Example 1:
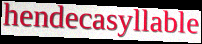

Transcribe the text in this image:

hendecasyllable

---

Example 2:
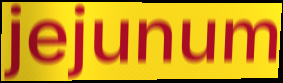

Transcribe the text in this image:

jejunum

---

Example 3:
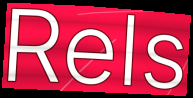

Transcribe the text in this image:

Rels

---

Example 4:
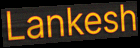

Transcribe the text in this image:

Lankesh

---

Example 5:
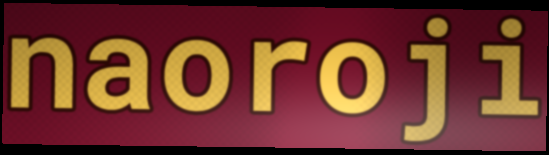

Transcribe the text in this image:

naoroji